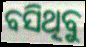
ବସିଥିବୁ